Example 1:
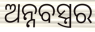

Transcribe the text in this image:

ଅନ୍ନବସ୍ତ୍ରର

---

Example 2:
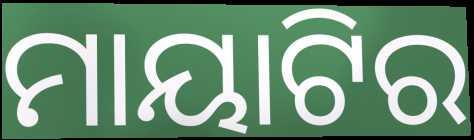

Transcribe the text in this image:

ମାୟାଟିର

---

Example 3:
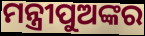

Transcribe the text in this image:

ମନ୍ତ୍ରୀପୁଅଙ୍କର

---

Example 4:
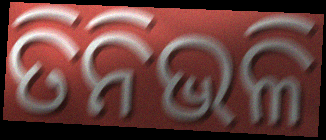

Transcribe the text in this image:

ତିନିଭଳି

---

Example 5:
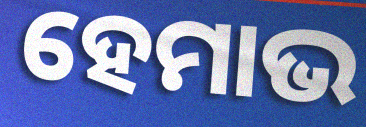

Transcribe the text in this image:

ହେମାଭ